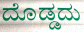
ದೊಡ್ಡದು